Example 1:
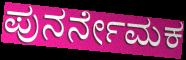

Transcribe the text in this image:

ಪುನರ್ನೇಮಕ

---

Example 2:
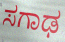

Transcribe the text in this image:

ಸಗಾಢ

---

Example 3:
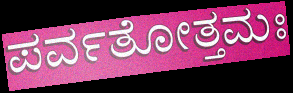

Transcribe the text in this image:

ಪರ್ವತೋತ್ತಮಃ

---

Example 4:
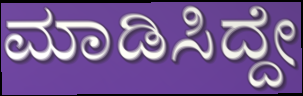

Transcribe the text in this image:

ಮಾಡಿಸಿದ್ದೇ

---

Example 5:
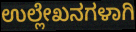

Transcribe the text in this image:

ಉಲ್ಲೇಖನಗಳಾಗಿ